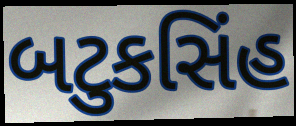
બટુકસિંહ